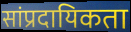
सांप्रदायिकता